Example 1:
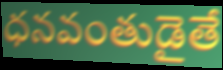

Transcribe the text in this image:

ధనవంతుడైతే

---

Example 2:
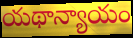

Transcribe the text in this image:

యథాన్యాయం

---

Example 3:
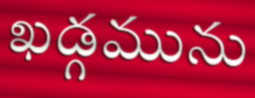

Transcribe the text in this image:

ఖడ్గమును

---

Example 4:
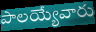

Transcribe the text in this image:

పాలయ్యేవారు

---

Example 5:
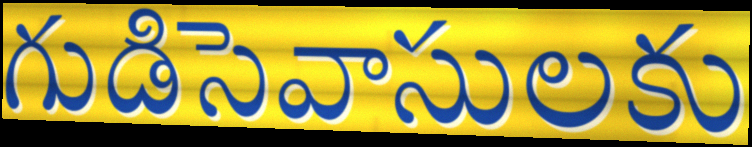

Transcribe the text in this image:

గుడిసెవాసులకు